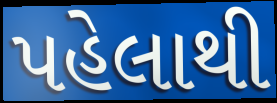
પહેલાથી